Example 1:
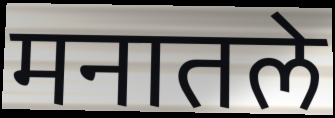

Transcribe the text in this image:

मनातले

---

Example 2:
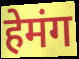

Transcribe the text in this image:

हेमंग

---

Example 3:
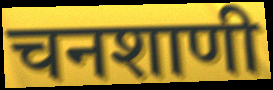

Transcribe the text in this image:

चनशाणी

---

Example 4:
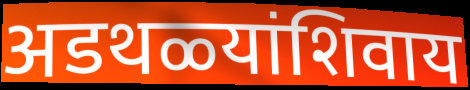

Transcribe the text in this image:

अडथळ्यांशिवाय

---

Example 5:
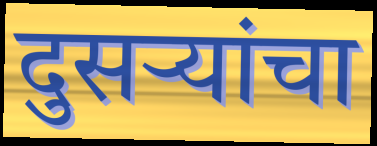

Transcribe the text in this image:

दुसऱ्यांचा